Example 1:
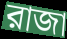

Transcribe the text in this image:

রাজা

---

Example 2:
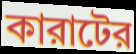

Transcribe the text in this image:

কারাটের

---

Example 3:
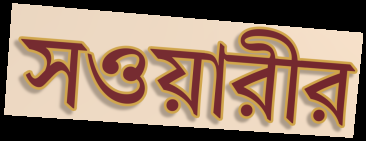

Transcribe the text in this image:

সওয়ারীর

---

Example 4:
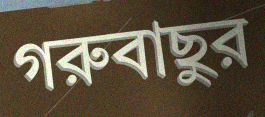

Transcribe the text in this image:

গরুবাছুর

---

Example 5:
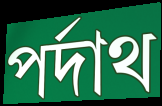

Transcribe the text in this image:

পর্দাথ